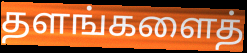
தளங்களைத்